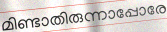
മിണ്ടാതിരുന്നാപ്പോരേ